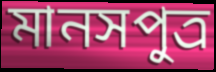
মানসপুত্ৰ